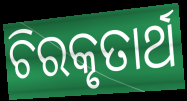
ଚିରକୃତାର୍ଥ